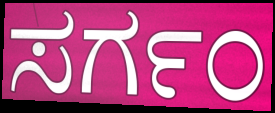
ಸರ್ಗಂ